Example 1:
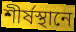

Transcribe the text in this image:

শীর্ষস্থানে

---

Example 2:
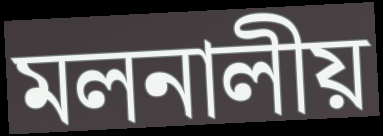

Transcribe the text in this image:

মলনালীয়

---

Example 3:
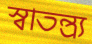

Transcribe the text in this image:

স্বাতন্ত্র্য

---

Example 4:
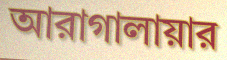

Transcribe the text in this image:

আরাগালায়ার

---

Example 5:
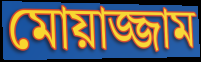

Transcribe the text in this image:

মোয়াজ্জাম